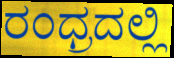
ರಂಧ್ರದಲ್ಲಿ